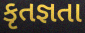
કૃતજ્ઞતા